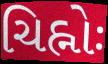
ચિહ્નોઃ